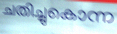
ചതിച്ചുകൊന്ന